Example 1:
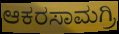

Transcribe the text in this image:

ಆಕರಸಾಮಗ್ರಿ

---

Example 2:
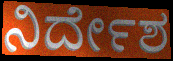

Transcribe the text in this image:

ನಿರ್ದೇಶ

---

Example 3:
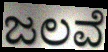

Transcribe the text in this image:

ಜಲವೆ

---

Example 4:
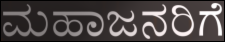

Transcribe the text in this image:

ಮಹಾಜನರಿಗೆ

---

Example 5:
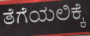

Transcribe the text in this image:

ತೆಗೆಯಲಿಕ್ಕೆ